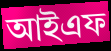
আইএফ